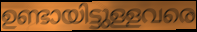
ഉണ്ടായിട്ടുള്ളവരെ